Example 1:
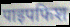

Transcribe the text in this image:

पाइपफिश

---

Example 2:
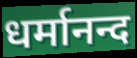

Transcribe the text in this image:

धर्मानन्द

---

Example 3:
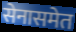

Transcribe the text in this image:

सेनासमेत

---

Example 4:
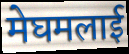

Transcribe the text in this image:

मेघमलाई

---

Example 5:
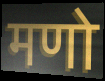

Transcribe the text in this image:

मणो